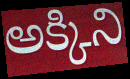
అక్కిని